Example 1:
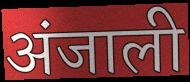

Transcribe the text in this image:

अंजाली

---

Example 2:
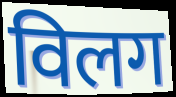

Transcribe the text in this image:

विलग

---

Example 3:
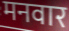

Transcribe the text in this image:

मनवार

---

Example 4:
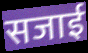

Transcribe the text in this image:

सजाई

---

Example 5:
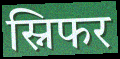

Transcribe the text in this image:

स्निफर